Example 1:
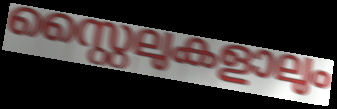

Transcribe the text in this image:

സ്റ്റൈലുകളാലും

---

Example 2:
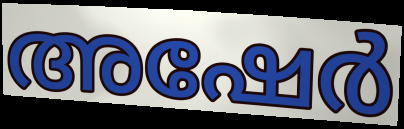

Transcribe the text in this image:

അഷേർ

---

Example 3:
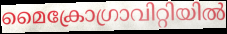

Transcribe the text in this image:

മൈക്രോഗ്രാവിറ്റിയിൽ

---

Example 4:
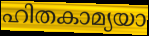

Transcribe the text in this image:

ഹിതകാമ്യയാ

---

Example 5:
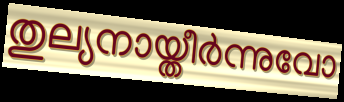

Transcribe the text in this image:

തുല്യനായ്തീർന്നുവോ